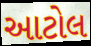
આટોલ